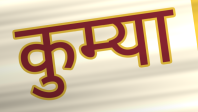
कुम्या